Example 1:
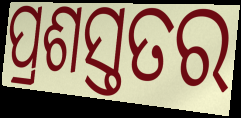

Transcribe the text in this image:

ପ୍ରଶସ୍ତତର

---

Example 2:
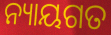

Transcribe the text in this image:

ନ୍ୟାୟଗତ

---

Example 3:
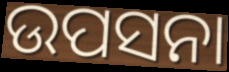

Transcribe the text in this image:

ଉପସନା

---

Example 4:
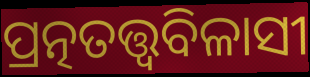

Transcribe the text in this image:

ପ୍ରତ୍ନତତ୍ତ୍ବବିଳାସୀ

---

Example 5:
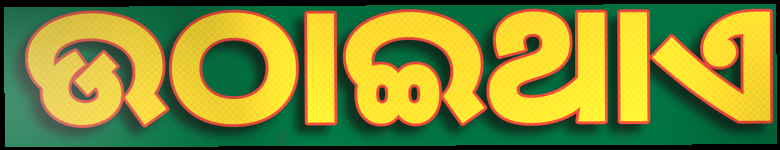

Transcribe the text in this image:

ଉଠାଇଥାଏ